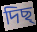
দিছ্